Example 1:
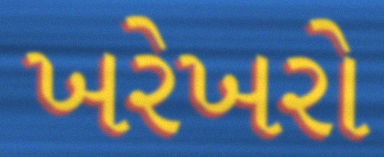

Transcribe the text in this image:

ખરેખરો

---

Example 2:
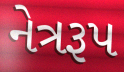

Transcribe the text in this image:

નેત્રરૂપ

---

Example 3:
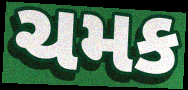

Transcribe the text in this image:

ચમક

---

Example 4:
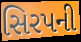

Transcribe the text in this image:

સિરપની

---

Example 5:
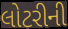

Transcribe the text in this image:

લોટરીની